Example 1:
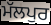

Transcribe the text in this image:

ਮੱਲਪੁਰ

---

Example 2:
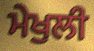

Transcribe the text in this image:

ਮੇਖੁਲੀ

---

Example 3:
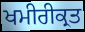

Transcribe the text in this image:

ਖਮੀਰੀਕ੍ਰਤ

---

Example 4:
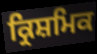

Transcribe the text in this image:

ਕ੍ਰਿਸ਼ਮਿਕ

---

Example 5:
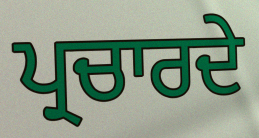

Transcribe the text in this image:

ਪ੍ਰਚਾਰਦੇ